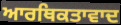
ਆਰਥਿਕਤਾਵਾਦ